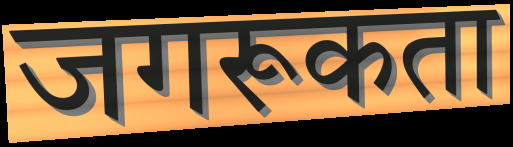
जगरूकता